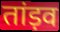
तांड़व